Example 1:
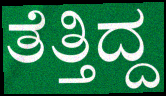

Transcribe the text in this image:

ತೆತ್ತಿದ್ದ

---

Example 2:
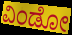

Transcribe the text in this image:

ವಿಂಡೋ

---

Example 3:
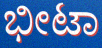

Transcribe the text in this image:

ಭೀಟಾ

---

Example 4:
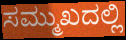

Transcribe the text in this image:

ಸಮ್ಮುಖದಲ್ಲಿ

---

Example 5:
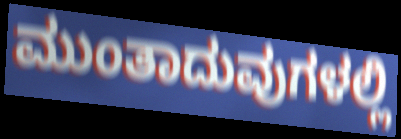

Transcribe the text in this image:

ಮುಂತಾದುವುಗಳಲ್ಲಿ